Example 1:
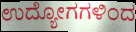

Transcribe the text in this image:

ಉದ್ಯೋಗಗಳಿಂದ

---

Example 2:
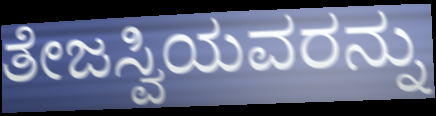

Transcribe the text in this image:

ತೇಜಸ್ವಿಯವರನ್ನು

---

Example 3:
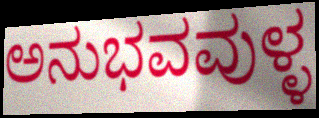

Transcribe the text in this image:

ಅನುಭವವುಳ್ಳ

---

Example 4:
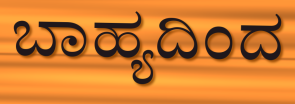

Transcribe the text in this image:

ಬಾಹ್ಯದಿಂದ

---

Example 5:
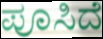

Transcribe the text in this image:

ಪೂಸಿದೆ